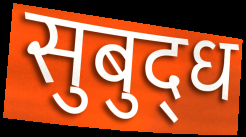
सुबुद्ध